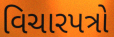
વિચારપત્રો